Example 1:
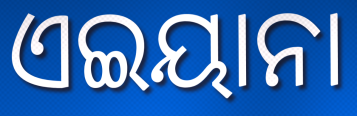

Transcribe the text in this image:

ଏଇୟାନା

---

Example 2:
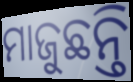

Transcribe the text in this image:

ମାଜୁଛନ୍ତି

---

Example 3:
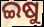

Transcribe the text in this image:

ଇଷୁ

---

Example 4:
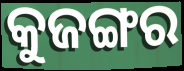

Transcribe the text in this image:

କୁଜଙ୍ଗର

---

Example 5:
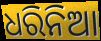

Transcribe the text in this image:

ଧରିନିଆ